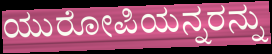
ಯುರೋಪಿಯನ್ನರನ್ನು